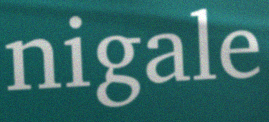
nigale